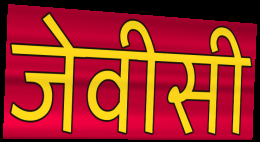
जेवीसी